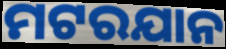
ମଟରଯାନ